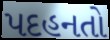
પદહનતો